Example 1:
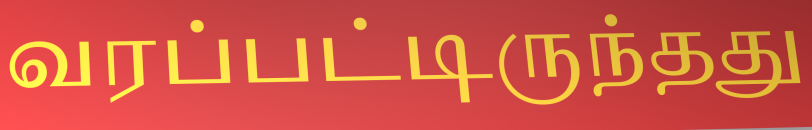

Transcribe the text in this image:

வரப்பட்டிருந்தது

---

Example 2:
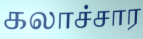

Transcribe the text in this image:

கலாச்சார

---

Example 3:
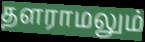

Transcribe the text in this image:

தளராமலும்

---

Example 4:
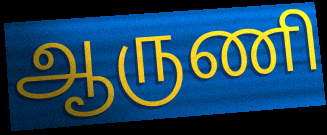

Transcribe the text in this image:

ஆருணி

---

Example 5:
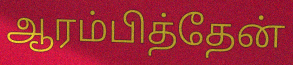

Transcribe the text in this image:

ஆரம்பித்தேன்